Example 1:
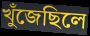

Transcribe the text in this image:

খুঁজেছিলে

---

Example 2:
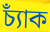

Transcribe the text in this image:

চ্যাঁক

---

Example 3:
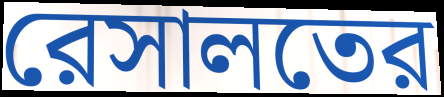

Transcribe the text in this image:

রেসালতের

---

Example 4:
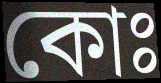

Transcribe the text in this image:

কোঃ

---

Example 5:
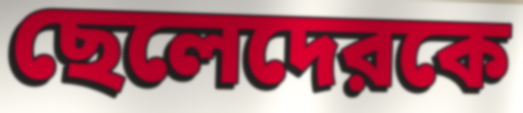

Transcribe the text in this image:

ছেলেদেরকে